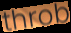
throb